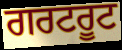
ਗਰਟਰੂਟ